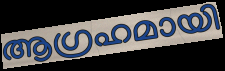
ആഗ്രഹമായി